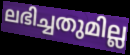
ലഭിച്ചതുമില്ല